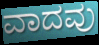
ವಾದವು